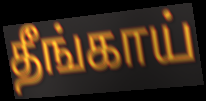
தீங்காய்